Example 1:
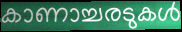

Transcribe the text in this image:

കാണാച്ചരടുകൾ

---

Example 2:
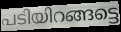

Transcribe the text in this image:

പടിയിറങ്ങട്ടെ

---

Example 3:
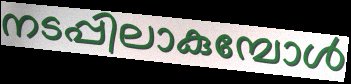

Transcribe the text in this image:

നടപ്പിലാകുമ്പോൾ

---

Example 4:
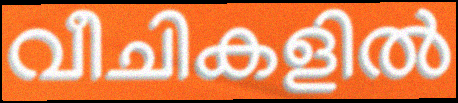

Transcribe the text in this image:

വീചികളിൽ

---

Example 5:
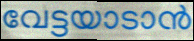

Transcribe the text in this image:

വേട്ടയാടാൻ